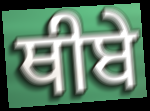
ਥੀਬੇ